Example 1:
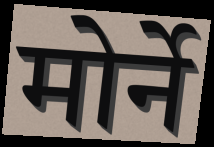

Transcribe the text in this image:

मोर्ने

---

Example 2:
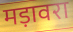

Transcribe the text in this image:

मड़ावरा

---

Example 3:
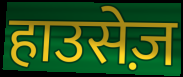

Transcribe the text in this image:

हाउसेज़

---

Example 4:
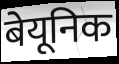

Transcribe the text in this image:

बेयूनिक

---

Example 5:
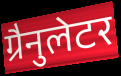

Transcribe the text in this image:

ग्रैनुलेटर